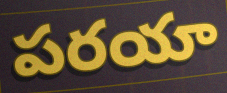
పరయా